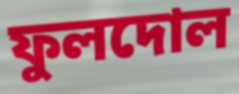
ফুলদোল